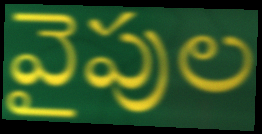
వైపుల